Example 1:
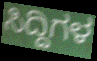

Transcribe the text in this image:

ಸಿದ್ದಿಗಳ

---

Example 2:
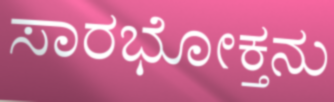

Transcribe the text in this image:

ಸಾರಭೋಕ್ತನು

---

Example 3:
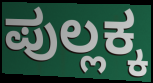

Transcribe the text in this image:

ಪುಲ್ಲಕ್ಕ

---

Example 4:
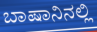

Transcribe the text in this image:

ಬಾಷಾನಿನಲ್ಲಿ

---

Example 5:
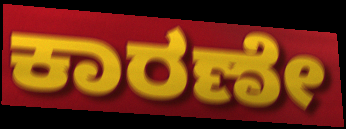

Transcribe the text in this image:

ಕಾರಣೇ